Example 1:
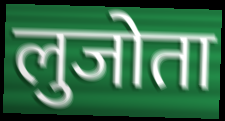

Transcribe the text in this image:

लुजोता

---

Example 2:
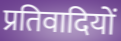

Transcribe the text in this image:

प्रतिवादियों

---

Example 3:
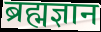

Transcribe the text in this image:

ब्रह्मज्ञान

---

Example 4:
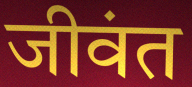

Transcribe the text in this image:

जीवंत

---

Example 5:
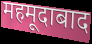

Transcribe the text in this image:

महमूदाबाद